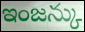
ఇంజన్కు